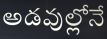
అడవుల్లోనే